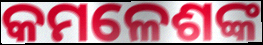
କମଳେଶଙ୍କ